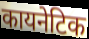
कायनेटिक